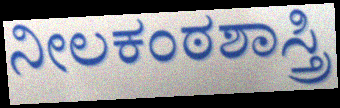
ನೀಲಕಂಠಶಾಸ್ತ್ರಿ